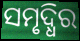
ସମୃଦ୍ଧିର